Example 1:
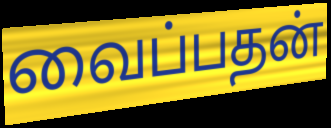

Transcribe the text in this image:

வைப்பதன்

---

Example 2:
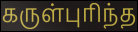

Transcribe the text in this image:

கருள்புரிந்த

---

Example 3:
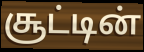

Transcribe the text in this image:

சூட்டின்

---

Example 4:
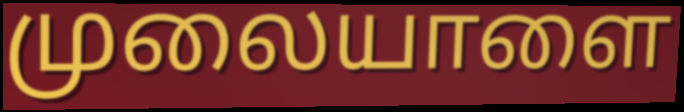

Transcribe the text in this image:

முலையாளை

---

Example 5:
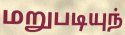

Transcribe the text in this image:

மறுபடியுந்